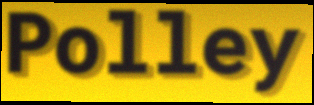
Polley